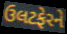
ઉલટફેરને